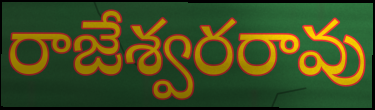
రాజేశ్వరరావు